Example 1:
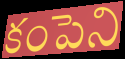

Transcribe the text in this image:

కంపెని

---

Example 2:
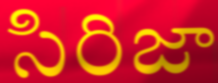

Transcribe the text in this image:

సిరిజా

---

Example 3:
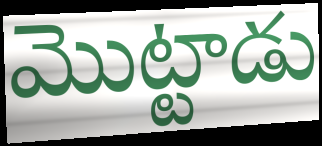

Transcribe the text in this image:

మొట్టాడు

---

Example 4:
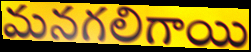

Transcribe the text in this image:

మనగలిగాయి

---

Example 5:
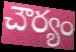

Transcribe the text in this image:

చౌర్యం